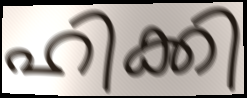
ഹിക്കി